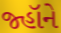
જ્હૉને